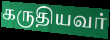
கருதியவர்